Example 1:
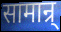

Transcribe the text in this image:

सामान्र्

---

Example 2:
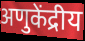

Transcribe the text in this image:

अणुकेंद्रीय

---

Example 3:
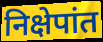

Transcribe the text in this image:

निक्षेपांत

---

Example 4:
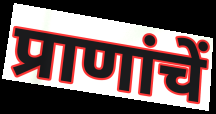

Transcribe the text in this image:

प्राणांचें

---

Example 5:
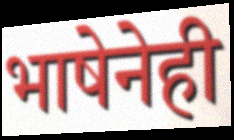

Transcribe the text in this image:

भाषेनेही